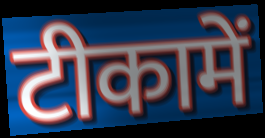
टीकामें